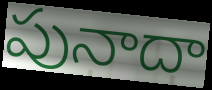
పునాదా